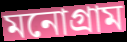
মনোগ্রাম